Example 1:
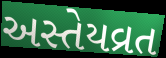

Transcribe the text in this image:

અસ્તેયવ્રત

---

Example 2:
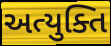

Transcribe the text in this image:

અત્યુક્તિ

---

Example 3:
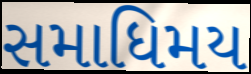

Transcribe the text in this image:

સમાધિમય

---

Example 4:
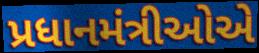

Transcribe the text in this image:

પ્રધાનમંત્રીઓએ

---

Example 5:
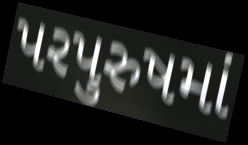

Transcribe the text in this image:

પરપુરુષમાં